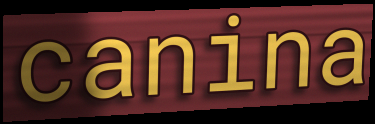
canina